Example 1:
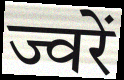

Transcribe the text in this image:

ज्वरें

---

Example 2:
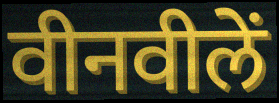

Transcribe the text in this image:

वीनवीलें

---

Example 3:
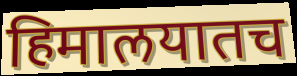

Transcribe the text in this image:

हिमालयातच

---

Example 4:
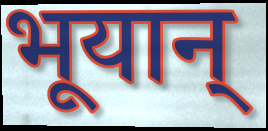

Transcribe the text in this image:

भूयान्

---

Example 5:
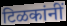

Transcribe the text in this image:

टिळकांनीं